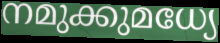
നമുക്കുമധ്യേ